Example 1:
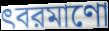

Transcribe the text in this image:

ৎবরমাণো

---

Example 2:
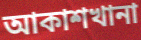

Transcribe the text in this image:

আকাশখানা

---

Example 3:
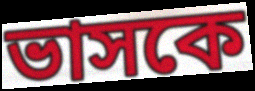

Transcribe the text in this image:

ভাসকে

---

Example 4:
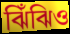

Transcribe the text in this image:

ঝিঁঝিও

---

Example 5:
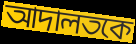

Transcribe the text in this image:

আদালতকে